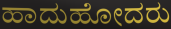
ಹಾದುಹೋದರು